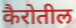
कैरोतील